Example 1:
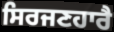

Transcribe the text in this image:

ਸਿਰਜਣਹਾਰੈ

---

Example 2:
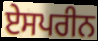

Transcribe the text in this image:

ਏਸਪਰੀਨ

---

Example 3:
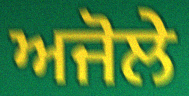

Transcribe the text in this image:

ਅਜੋਲੇ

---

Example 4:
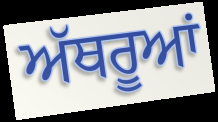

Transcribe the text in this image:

ਅੱਥਰੂਆਂ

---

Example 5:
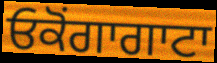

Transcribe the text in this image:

ਓਕੋਂਗਾਗਾਟਾ